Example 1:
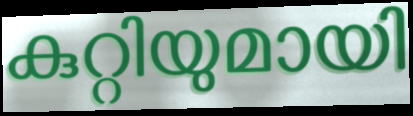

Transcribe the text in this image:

കുറ്റിയുമായി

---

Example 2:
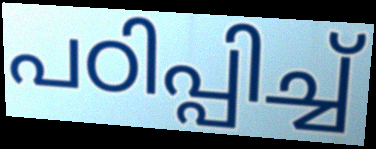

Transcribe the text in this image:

പഠിപ്പിച്ച്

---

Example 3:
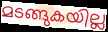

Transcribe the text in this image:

മടങ്ങുകയില്ല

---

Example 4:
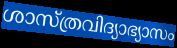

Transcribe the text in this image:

ശാസ്ത്രവിദ്യാഭ്യാസം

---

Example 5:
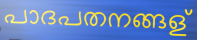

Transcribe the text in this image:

പാദപതനങ്ങള്